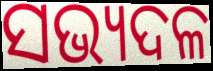
ସଭ୍ୟଦଳ